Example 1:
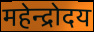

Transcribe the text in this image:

महेन्द्रोदय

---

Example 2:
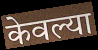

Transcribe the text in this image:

केवल्या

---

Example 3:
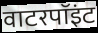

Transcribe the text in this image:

वाटरपॉइंट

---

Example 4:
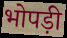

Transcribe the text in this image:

भोपड़ी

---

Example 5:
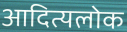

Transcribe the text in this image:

आदित्यलोक